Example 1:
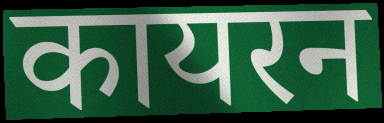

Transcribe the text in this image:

कायरन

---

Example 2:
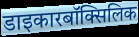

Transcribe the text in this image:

डाइकारबॉक्सिलिक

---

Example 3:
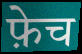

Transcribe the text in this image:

फ़ेच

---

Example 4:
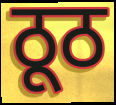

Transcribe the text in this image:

ठूठ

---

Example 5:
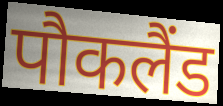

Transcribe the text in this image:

पौकलैंड